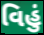
વિહું